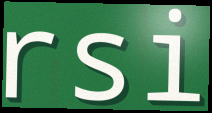
rsi